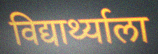
विद्यार्थ्याला